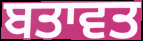
ਬਤਾਵਤ